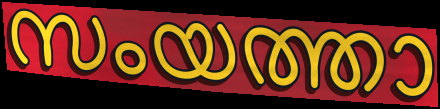
സംയത്താ